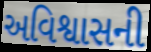
અવિશ્વાસની